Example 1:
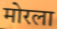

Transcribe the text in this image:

मोरला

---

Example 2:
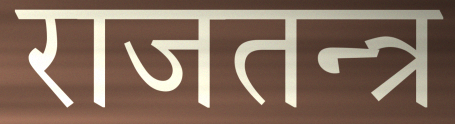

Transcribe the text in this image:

राजतन्त्र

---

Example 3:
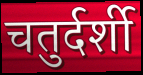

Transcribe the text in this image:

चतुर्दर्शी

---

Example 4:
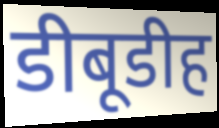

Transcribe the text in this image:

डीबूडीह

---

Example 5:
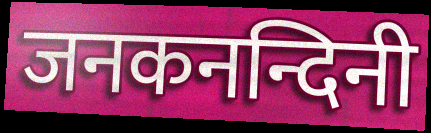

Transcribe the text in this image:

जनकनन्दिनी